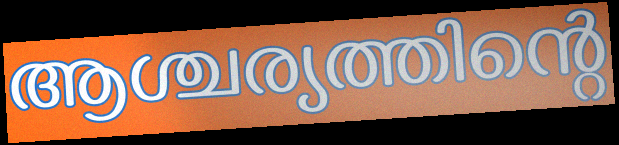
ആശ്ചര്യത്തിന്റെ